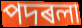
পদৰলা